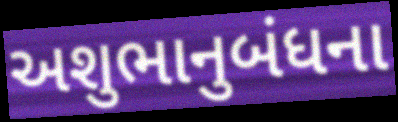
અશુભાનુબંધના